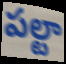
పల్టా